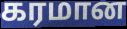
கரமான